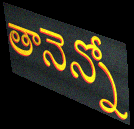
తానెన్నో